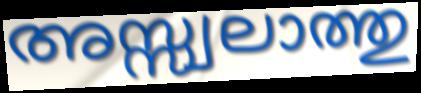
അസ്സ്വലാത്തു